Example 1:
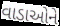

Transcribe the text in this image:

વાડાઓને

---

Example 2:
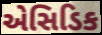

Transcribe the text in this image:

એસિડિક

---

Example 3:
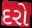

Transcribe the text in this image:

દરો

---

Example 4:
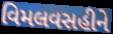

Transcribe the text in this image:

વિમલવસહીને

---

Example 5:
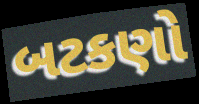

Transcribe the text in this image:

બટકણો